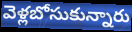
వెళ్లబోసుకున్నారు